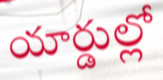
యార్డుల్లో